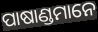
ପାଷାଣ୍ଡମାନେ